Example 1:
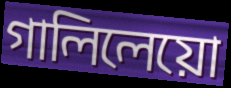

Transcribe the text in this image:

গালিলেয়ো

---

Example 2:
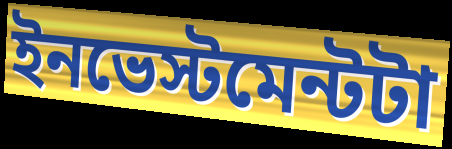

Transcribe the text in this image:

ইনভেস্টমেন্টটা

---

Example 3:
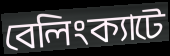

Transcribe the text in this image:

বেলিংক্যাটে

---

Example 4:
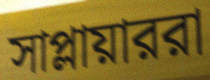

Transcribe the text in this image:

সাপ্লায়াররা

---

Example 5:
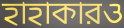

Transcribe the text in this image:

হাহাকারও